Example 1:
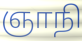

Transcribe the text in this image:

ஞாநி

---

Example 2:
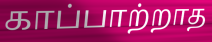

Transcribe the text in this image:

காப்பாற்றாத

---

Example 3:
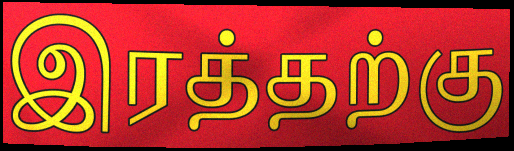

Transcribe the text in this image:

இரத்தற்கு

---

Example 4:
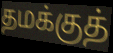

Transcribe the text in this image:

தமக்குத்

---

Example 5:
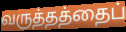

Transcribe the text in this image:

வருத்தத்தைப்